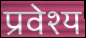
प्रवेश्य